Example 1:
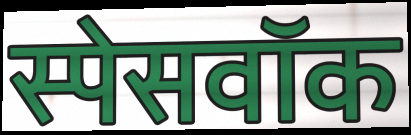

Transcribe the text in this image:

स्पेसवॉक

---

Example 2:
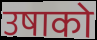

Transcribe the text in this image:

उषाको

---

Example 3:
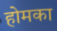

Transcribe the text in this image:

होमका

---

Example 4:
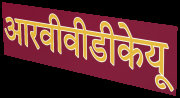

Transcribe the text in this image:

आरवीवीडीकेयू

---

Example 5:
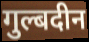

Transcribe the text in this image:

गुल्बदीन